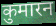
कुमारन